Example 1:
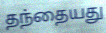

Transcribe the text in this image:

தந்தையது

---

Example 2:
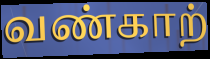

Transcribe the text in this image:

வண்காற்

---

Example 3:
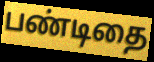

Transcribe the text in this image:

பண்டிதை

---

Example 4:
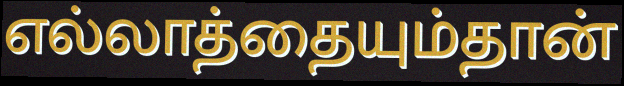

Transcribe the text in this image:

எல்லாத்தையும்தான்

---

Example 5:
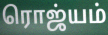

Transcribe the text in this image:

ரொஜ்யம்